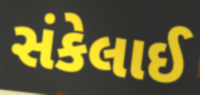
સંકેલાઈ